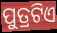
ପୁତ୍ରଟିଏ